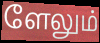
ளேலும்